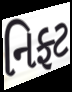
નિફ્ટ